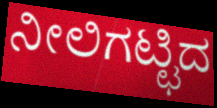
ನೀಲಿಗಟ್ಟಿದ